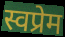
स्वप्रेम